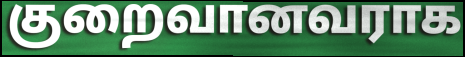
குறைவானவராக